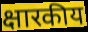
क्षारकीय